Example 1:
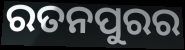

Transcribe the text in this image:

ରତନପୁରର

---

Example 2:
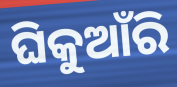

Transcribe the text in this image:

ଘିକୁଆଁରି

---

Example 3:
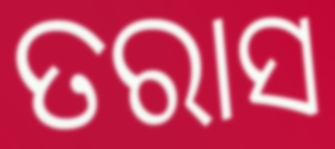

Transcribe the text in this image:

ତରାସ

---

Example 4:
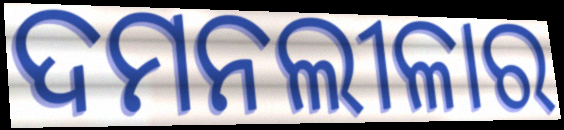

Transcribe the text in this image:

ଦମନଲୀଳାର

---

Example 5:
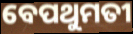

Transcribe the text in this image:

ବେପଥୁମତୀ